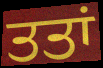
ਤਤਾਂ